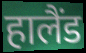
हालैंड